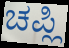
ಚಪ್ಲಿ